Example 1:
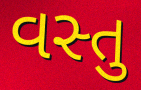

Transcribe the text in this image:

વસ્તુ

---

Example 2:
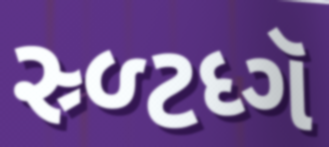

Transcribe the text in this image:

સ્ર્ળ્ટધ્ગૅ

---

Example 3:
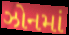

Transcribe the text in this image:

ઝોનમાં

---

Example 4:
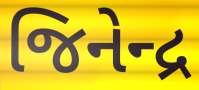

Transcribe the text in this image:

જિનેન્દ્ર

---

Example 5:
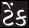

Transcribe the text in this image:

ટેંક